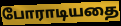
போராடியதை